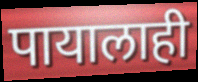
पायालाही